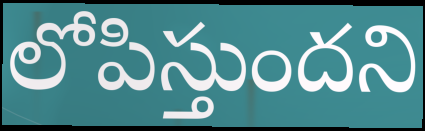
లోపిస్తుందని